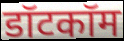
डॉटकॉम